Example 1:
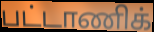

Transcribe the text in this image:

பட்டாணிக்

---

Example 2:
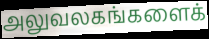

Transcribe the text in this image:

அலுவலகங்களைக்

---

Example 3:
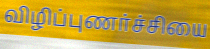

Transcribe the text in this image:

விழிப்புணர்ச்சியை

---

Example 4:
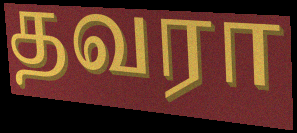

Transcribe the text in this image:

தவரா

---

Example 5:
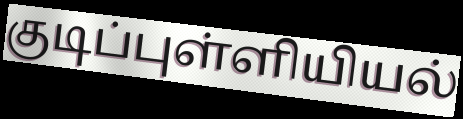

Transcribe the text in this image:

குடிப்புள்ளியியல்